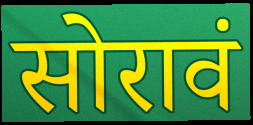
सोरावं